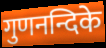
गुणनन्दिके